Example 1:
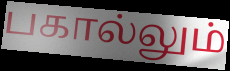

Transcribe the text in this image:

பகால்லும்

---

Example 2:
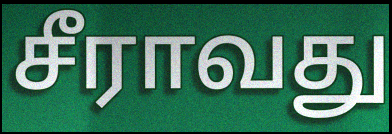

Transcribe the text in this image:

சீராவது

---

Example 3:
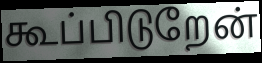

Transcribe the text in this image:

கூப்பிடுறேன்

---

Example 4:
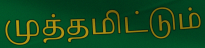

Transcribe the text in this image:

முத்தமிட்டும்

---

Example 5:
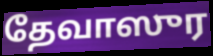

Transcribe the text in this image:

தேவாஸுர